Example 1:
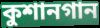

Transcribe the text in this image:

কুশানগান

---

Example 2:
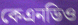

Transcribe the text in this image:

কেএনডিও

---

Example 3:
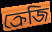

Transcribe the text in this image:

ক্রেজি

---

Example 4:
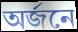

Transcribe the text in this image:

অর্জনে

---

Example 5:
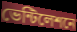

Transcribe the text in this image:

ভেন্টিলেশনে